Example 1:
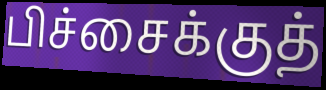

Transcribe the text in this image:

பிச்சைக்குத்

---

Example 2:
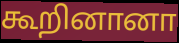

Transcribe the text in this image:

கூறினானா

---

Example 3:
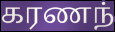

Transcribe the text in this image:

கரணந்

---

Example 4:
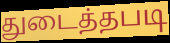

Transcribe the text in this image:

துடைத்தபடி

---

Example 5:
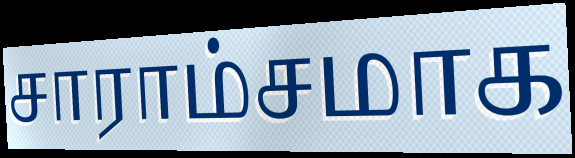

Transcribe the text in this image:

சாராம்சமாக